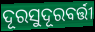
ଦୂରସୁଦୂରବର୍ତ୍ତୀ